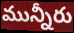
మున్నీరు